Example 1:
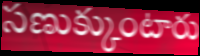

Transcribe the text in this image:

సణుక్కుంటారు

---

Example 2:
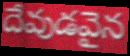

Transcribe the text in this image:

దేవుడవైన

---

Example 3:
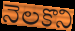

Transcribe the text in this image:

నెలకొని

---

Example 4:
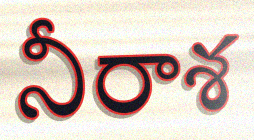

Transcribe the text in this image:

నీరాశ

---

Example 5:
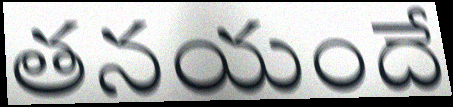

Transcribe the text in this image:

తనయందే